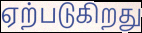
ஏற்படுகிறது